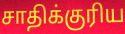
சாதிக்குரிய